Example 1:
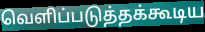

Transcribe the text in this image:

வெளிப்படுத்தக்கூடிய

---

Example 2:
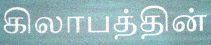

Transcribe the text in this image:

கிலாபத்தின்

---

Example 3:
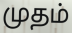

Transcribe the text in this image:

முதம்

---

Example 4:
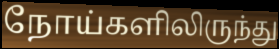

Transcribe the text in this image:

நோய்களிலிருந்து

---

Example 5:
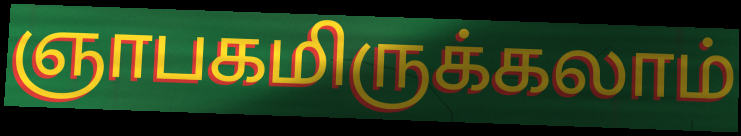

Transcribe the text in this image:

ஞாபகமிருக்கலாம்